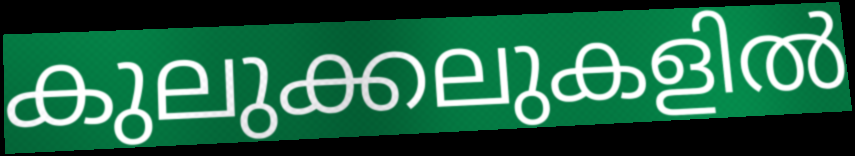
കുലുക്കലുകളിൽ